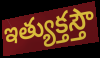
ఇత్యుక్తస్తౌ